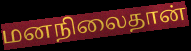
மனநிலைதான்